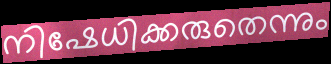
നിഷേധിക്കരുതെന്നും